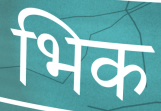
भिक